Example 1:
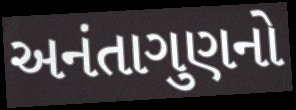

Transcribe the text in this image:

અનંતાગુણનો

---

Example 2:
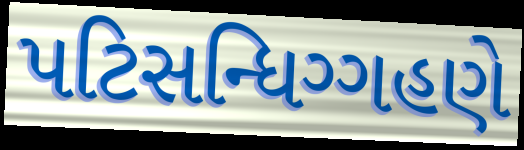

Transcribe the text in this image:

પટિસન્ધિગ્ગહણે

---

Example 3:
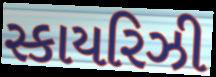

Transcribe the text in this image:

સ્કાયરિઝી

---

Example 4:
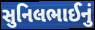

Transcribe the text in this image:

સુનિલભાઈનું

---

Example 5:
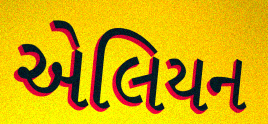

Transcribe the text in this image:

એલિયન